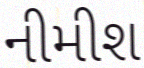
નીમીશ